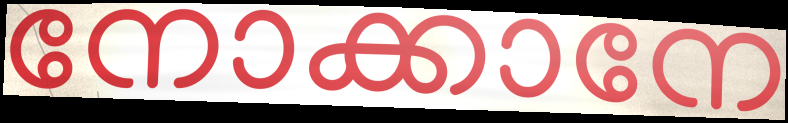
നോക്കാനേ